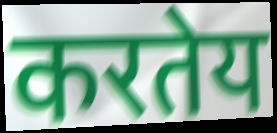
करतेय